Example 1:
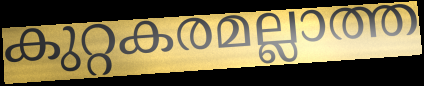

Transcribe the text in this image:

കുറ്റകരമല്ലാത്ത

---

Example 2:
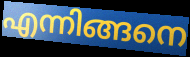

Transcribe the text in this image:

എന്നിങ്ങനെ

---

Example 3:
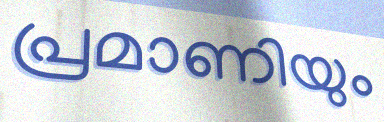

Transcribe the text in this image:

പ്രമാണിയും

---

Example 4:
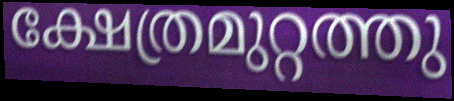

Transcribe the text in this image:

ക്ഷേത്രമുറ്റത്തു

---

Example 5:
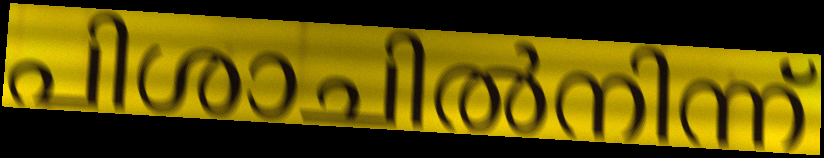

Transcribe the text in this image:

പിശാചിൽനിന്ന്